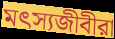
মৎস্যজীবীরা